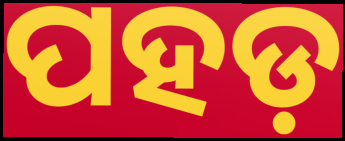
ପହଡ଼